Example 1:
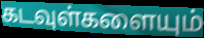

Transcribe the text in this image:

கடவுள்களையும்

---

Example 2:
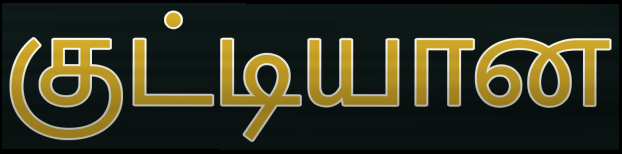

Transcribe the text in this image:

குட்டியான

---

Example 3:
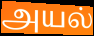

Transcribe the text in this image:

அயல்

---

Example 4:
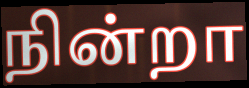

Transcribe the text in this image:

நின்றா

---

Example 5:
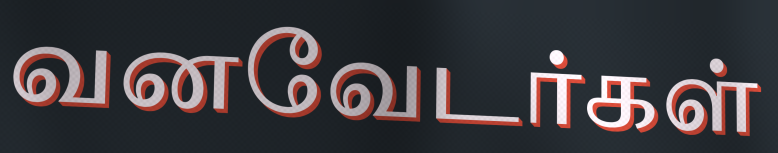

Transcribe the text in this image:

வனவேடர்கள்